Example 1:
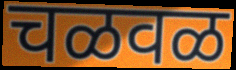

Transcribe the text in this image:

चळवळ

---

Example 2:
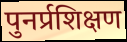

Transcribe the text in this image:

पुनर्प्रशिक्षण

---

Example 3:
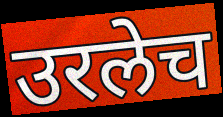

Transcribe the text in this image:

उरलेच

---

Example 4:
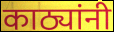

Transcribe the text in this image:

काठ्यांनी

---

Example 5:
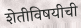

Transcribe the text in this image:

शेतीविषयीची